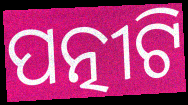
ପତ୍ନୀଟି